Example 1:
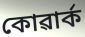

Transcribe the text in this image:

কোৱাৰ্ক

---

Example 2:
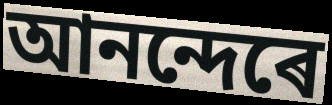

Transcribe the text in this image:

আনন্দেৰে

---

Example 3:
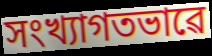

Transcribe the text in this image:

সংখ্যাগতভাৱে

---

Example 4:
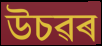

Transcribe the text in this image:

উচৱৰ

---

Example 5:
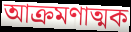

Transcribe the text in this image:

আক্ৰমণাত্মক